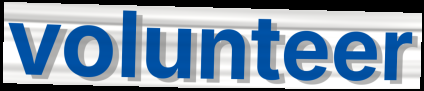
volunteer